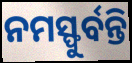
ନମସ୍ଫୁର୍ବନ୍ତି